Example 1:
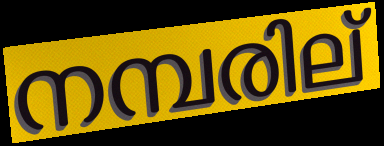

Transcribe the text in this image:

നമ്പരില്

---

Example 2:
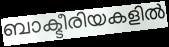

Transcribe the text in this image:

ബാക്ടീരിയകളിൽ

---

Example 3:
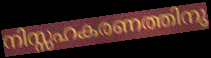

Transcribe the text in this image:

നിസ്സഹകരണത്തിനു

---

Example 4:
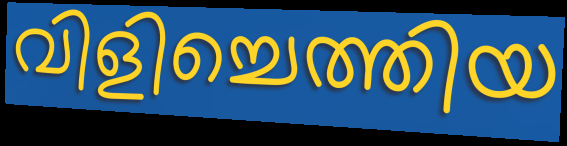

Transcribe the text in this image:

വിളിച്ചെത്തിയ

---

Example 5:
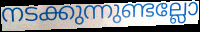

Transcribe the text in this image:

നടക്കുന്നുണ്ടല്ലോ